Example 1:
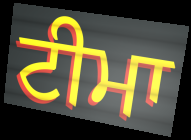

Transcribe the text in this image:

ਟੀਮਾ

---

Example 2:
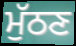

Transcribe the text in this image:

ਮੁੱਠਣ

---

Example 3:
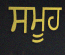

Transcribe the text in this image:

ਸਮੂਹ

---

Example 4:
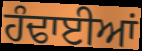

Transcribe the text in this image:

ਹੰਢਾਈਆਂ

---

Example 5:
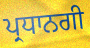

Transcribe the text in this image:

ਪ੍ਰਧਾਨਗੀ